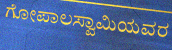
ಗೋಪಾಲಸ್ವಾಮಿಯವರ